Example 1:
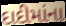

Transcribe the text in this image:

દાદીમાંના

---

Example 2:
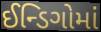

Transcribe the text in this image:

ઈન્ડિગોમાં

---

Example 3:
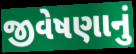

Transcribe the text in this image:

જીવેષણાનું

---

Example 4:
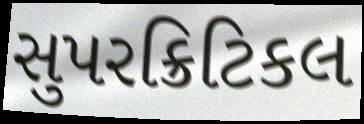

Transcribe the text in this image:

સુપરક્રિટિકલ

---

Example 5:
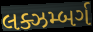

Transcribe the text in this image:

લક્ઝમ્બર્ગ